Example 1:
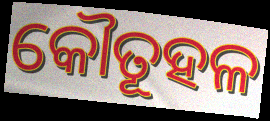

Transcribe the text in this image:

କୌତୂହଳ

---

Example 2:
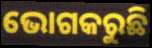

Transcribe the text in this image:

ଭୋଗକରୁଛି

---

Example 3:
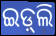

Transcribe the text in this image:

ଇଡ଼୍‌ଲି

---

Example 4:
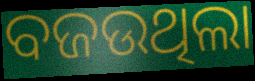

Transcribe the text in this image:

ବଜଉଥିଲା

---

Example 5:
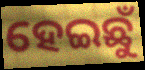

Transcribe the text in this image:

ହେଇଛୁଁ